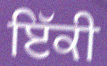
ਇੱਕੀ